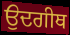
ਉਦਗੀਥ